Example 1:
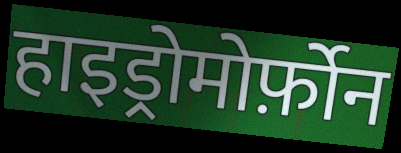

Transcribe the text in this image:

हाइड्रोमोर्फ़ोन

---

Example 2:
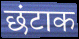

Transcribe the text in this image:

छंटाक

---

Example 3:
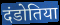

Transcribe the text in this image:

दंडोतिया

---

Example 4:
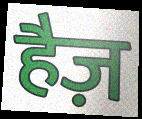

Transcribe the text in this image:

हैज़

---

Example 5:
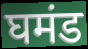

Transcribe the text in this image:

घमंड